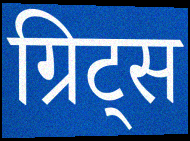
ग्रिट्स